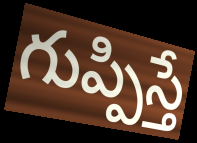
గుప్పిస్తే